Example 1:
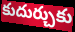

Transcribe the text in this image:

కుదుర్చుకు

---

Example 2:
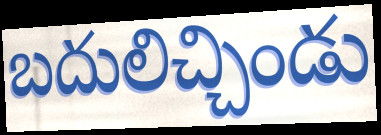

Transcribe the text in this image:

బదులిచ్చిండు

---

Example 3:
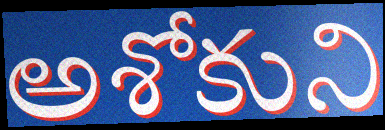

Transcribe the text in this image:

అశోకుని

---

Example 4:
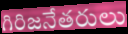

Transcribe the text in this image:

గిరిజనేతరులు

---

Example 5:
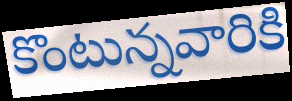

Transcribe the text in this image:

కొంటున్నవారికి